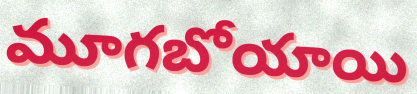
మూగబోయాయి